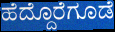
ಹೆದ್ದೊರೆಗೂಡೆ